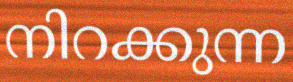
നിറക്കുന്ന